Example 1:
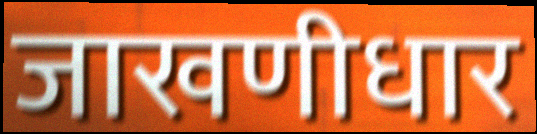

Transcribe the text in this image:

जाखणीधार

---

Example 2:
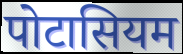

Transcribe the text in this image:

पोटासियम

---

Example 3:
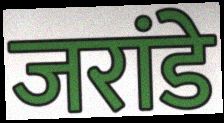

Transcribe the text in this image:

जरांडे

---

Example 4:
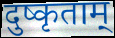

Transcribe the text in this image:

दुष्कृताम्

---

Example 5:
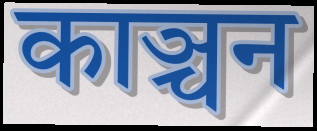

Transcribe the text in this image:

काञ्चन